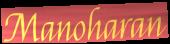
Manoharan